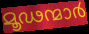
മൂഢന്മാർ